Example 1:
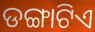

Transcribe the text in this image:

ଡଙ୍ଗାଟିଏ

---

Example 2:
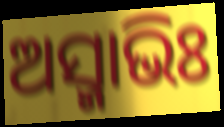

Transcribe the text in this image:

ଅସ୍ମାଭିଃ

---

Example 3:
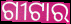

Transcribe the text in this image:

ଗୀଟାର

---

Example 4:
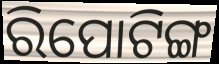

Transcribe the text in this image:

ରିପୋଟିଙ୍ଗ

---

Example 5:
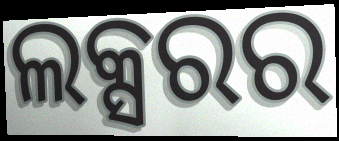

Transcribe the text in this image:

ଲକ୍ସରର